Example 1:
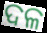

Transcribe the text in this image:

ଦଳ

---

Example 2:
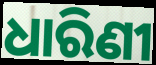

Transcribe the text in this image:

ଧାରିଣୀ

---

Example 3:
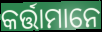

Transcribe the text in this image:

କର୍ତ୍ତାମାନେ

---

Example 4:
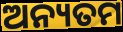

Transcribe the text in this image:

ଅନ୍ୟତମ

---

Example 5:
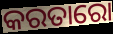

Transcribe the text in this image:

କରତାରୋ